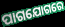
ପାଗଯୋଗରେ